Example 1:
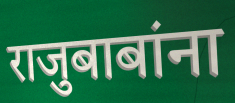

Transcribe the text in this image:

राजुबाबांना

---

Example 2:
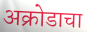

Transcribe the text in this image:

अक्रोडाचा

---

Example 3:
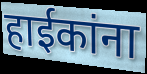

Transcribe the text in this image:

हाईकांना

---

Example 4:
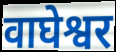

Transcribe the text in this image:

वाघेश्वर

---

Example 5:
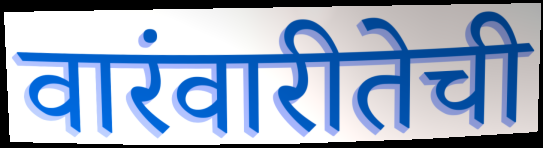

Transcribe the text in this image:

वारंवारीतेची